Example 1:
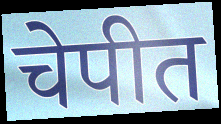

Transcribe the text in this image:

चेपीत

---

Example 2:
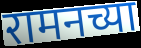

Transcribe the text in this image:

रामनच्या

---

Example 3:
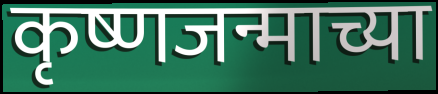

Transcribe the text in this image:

कृष्णजन्माच्या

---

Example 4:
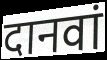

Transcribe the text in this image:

दानवां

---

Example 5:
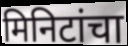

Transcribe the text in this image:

मिनिटांचा